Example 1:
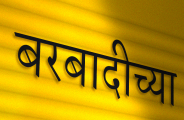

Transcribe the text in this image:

बरबादीच्या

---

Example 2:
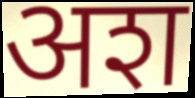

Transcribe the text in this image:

अश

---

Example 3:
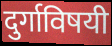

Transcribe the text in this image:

दुर्गाविषयी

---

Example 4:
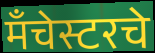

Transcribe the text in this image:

मँचेस्टरचे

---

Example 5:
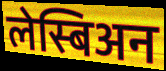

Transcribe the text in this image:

लेस्बिअन